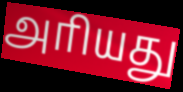
அரியது